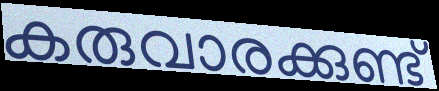
കരുവാരക്കുണ്ട്